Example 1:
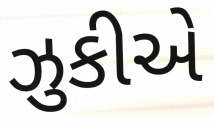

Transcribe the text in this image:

ઝુકીએ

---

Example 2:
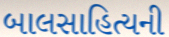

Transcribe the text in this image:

બાલસાહિત્યની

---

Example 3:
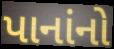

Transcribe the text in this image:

પાનાંનો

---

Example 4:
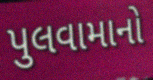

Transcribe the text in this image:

પુલવામાનો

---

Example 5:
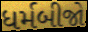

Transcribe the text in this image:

ધર્મબીજો